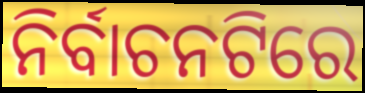
ନିର୍ବାଚନଟିରେ